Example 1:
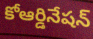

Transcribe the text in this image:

కోఆర్డినేషన్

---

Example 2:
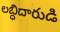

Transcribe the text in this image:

లబ్ధిదారుడి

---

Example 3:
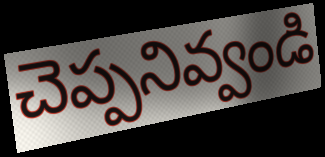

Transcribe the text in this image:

చెప్పనివ్వండి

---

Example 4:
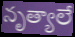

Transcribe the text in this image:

నృత్యాలే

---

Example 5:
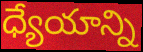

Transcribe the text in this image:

ధ్యేయాన్ని